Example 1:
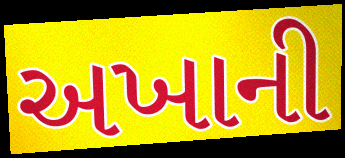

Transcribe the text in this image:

અખાની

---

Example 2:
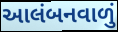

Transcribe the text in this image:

આલંબનવાળું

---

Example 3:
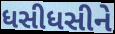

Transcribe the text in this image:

ધસીધસીને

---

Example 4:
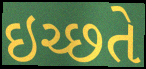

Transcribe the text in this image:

ઇચ્છતે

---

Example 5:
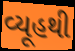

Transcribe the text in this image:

વ્યૂહથી